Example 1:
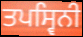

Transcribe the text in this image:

ਤਪਸ੍ਵਿਨੀ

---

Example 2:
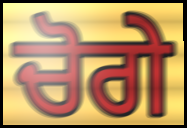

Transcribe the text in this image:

ਚੋਗੇ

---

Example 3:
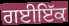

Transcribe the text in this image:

ਗਈਇੱਕ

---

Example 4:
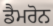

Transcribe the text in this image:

ਡੈਮਰੋਨ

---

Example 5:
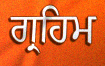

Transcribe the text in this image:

ਗ੍ਰਹਿਮ